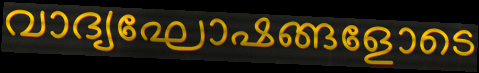
വാദ്യഘോഷങ്ങളോടെ